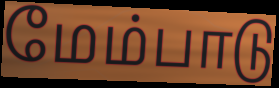
மேம்பாடு